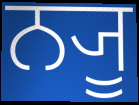
ਨ੍ਯੂ